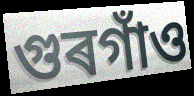
গুৰগাঁও